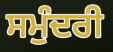
ਸਮੁੰਦਰੀ